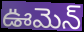
ఊమెన్